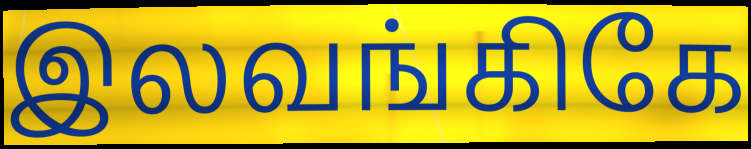
இலவங்கிகே